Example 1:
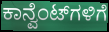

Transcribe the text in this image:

ಕಾನ್ವೆಂಟ್‌ಗಳಿಗೆ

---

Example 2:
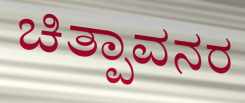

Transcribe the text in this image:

ಚಿತ್ಪಾವನರ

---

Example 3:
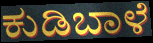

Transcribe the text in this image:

ಕುಡಿಬಾಳೆ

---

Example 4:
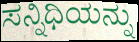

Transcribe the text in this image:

ಸನ್ನಿಧಿಯನ್ನು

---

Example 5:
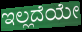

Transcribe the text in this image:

ಇಲ್ಲದೆಯೇ